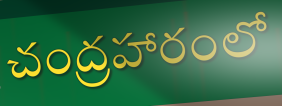
చంద్రహారంలో